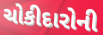
ચોકીદારોની